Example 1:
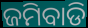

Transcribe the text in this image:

ଜମିବାଡି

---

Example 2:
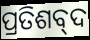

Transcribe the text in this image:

ପ୍ରତିଶବ୍‌ଦ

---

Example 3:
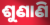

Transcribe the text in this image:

ଶୁଣାଣି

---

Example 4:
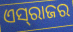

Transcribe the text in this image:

ଏସ୍‍ରାଜର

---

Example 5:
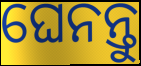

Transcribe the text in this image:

ଘେନନ୍ତୁ